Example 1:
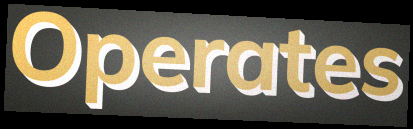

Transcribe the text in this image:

Operates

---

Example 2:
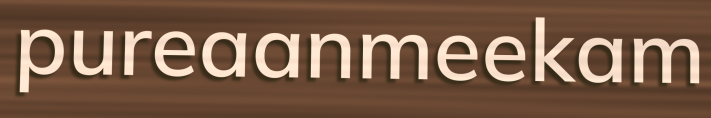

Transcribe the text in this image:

pureaanmeekam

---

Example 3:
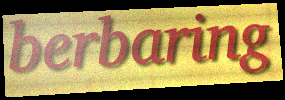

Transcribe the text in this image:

berbaring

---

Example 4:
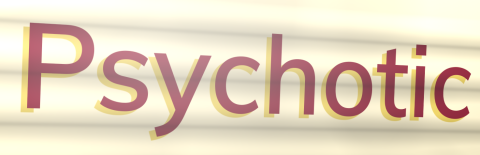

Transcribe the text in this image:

Psychotic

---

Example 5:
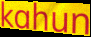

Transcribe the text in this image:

kahun